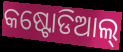
କଷ୍ଟୋଡିଆଲ୍